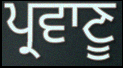
ਪ੍ਰਵਾਣੂ